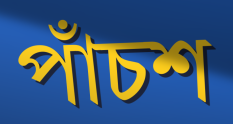
পাঁচশ